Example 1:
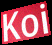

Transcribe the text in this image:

Koi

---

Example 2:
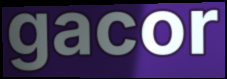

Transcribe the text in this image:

gacor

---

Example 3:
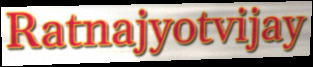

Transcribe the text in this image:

Ratnajyotvijay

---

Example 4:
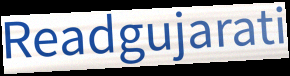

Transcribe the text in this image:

Readgujarati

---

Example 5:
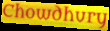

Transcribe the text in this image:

Chowdhury